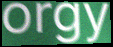
orgy